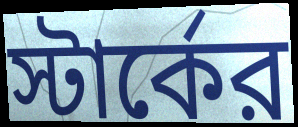
স্টার্কের